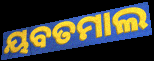
ୟବତମାଲ